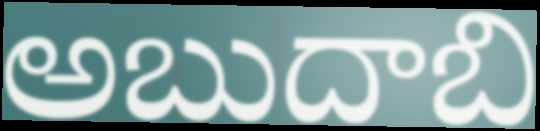
అబుదాబి